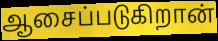
ஆசைப்படுகிறான்